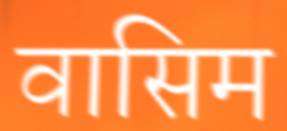
वासिम